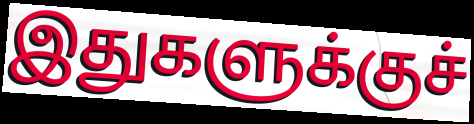
இதுகளுக்குச்